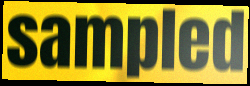
sampled